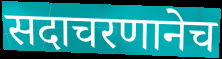
सदाचरणानेच